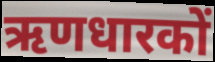
ऋणधारकों